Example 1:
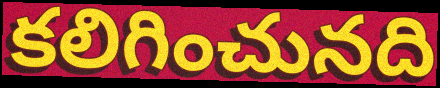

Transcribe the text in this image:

కలిగించునది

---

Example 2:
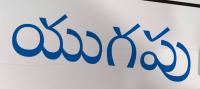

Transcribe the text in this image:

యుగపు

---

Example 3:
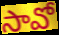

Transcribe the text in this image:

సావో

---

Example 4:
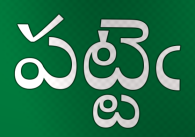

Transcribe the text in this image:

పట్టెఁ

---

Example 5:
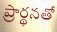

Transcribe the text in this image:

ప్రార్థనతో